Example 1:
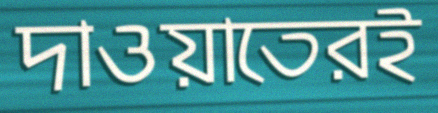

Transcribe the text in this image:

দাওয়াতেরই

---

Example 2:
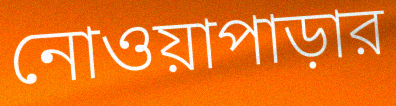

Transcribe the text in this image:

নোওয়াপাড়ার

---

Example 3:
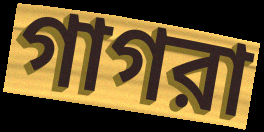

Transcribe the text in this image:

গাগরা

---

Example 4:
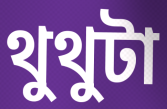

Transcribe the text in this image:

থুথুটা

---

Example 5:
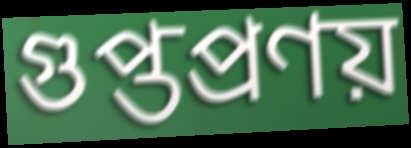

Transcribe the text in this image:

গুপ্তপ্রণয়